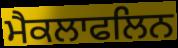
ਮੈਕਲਾਫਲਿਨ